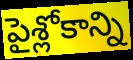
పైశ్లోకాన్ని